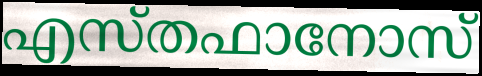
എസ്തഫാനോസ്